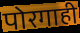
पोरगाही